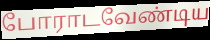
போராடவேண்டிய